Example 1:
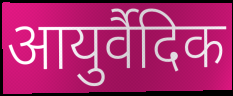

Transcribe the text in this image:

आयुर्वैदिक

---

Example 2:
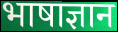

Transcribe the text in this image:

भाषाज्ञान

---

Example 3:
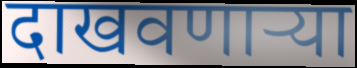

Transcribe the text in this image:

दाखवणाऱ्या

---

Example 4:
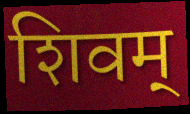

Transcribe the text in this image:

शिवम्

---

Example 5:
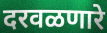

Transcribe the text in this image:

दरवळणारे